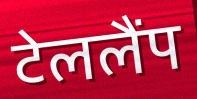
टेललैंप